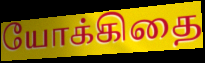
யோக்கிதை